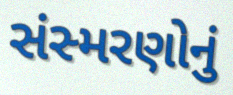
સંસ્મરણોનું